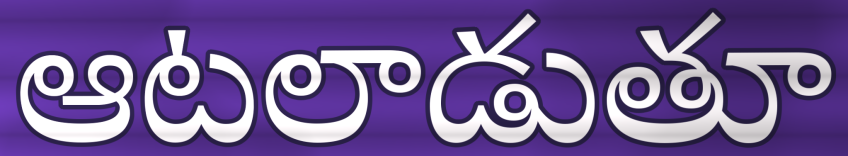
ఆటలాడుతూ